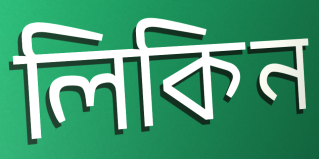
লিকিন